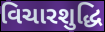
વિચારશુદ્ધિ